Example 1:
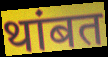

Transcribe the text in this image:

थांबत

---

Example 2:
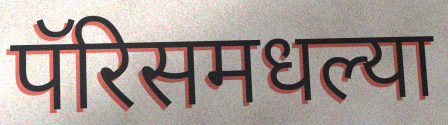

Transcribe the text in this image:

पॅरिसमधल्या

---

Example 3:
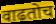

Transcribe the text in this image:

वाढतोच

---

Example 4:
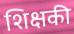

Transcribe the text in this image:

शिक्षकी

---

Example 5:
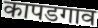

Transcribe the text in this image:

कापडगाव